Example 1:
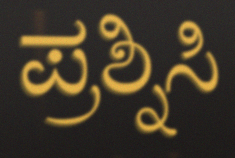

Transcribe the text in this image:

ಪ್ರಶ್ನಿಸಿ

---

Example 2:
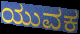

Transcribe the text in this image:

ಯುವಕ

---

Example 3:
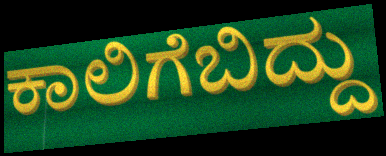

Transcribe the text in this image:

ಕಾಲಿಗೆಬಿದ್ದು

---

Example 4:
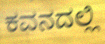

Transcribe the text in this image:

ಕವನದಲ್ಲಿ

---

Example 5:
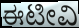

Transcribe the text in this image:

ಈಟೀವಿ